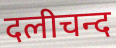
दलीचन्द